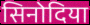
सिनोदिया